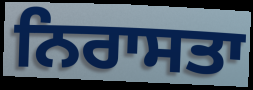
ਨਿਰਾਸਤਾ